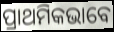
ପ୍ରାଥମିକଭାବେ